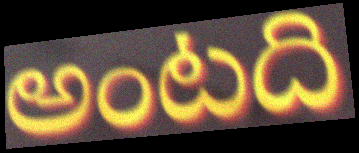
అంటది